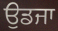
ਉਡਜਾ